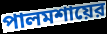
পালমশায়ের